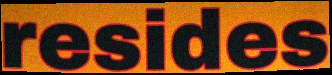
resides